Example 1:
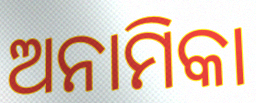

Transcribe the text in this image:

ଅନାମିକା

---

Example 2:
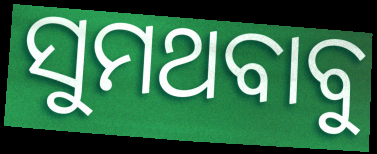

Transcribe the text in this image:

ସୁମଥବାବୁ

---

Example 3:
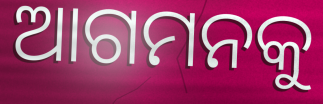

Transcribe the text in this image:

ଆଗମନକୁ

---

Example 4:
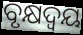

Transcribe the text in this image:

ବୃକ୍ଷଦ୍ୱୟ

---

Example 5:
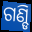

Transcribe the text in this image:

ଗଣ୍ଡି